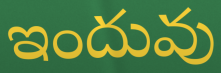
ఇందువు